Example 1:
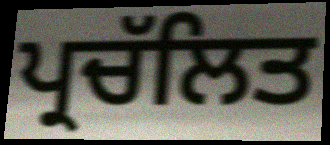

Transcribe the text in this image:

ਪ੍ਰਚੱਲਿਤ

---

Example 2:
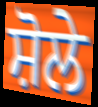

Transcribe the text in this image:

ਸ਼ੋਲੇ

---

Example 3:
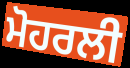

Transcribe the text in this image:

ਮੋਹਰਲੀ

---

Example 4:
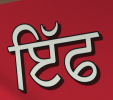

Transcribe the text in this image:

ਇੱਫ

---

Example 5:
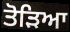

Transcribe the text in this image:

ਤੋਡ਼ਿਆ